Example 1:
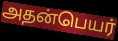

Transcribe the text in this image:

அதன்பெயர்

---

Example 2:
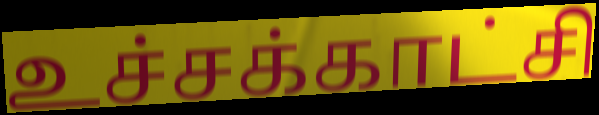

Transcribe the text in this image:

உச்சக்காட்சி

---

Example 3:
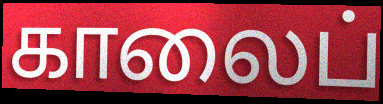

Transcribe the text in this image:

காலைப்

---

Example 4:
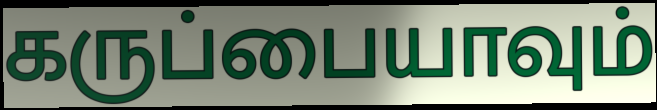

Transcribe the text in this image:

கருப்பையாவும்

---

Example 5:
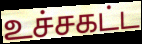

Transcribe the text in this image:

உச்சகட்ட